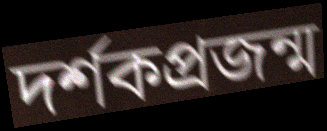
দর্শকপ্রজন্ম